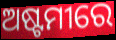
ଅଷ୍ଟମୀରେ